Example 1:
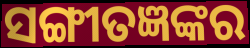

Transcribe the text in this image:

ସଙ୍ଗୀତଜ୍ଞଙ୍କର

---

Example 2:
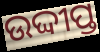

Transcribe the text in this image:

ଉଦ୍ଦୀପ୍ତ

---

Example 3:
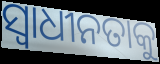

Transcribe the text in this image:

ସ୍ୱାଧୀନତାକୁ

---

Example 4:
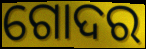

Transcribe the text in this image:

ଗୋଦର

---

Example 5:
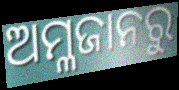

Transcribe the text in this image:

ଅମ୍ଳଜାନରୁ